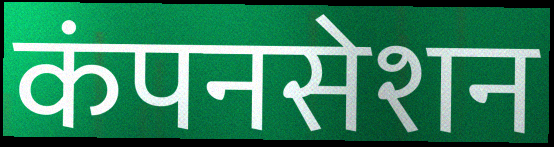
कंपनसेशन